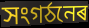
সংগঠনেৰ